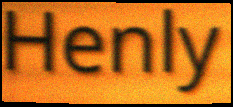
Henly